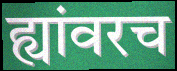
ह्यांवरच